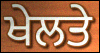
ਖੇਲਤੇ